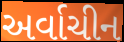
અર્વાચીન